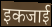
इकजाई